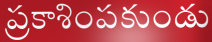
ప్రకాశింపకుండు